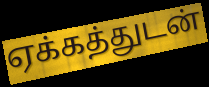
ஏக்கத்துடன்